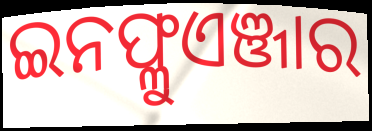
ଇନଫ୍ଳୁଏଞ୍ଜାର